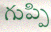
గుప్పి